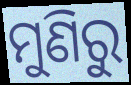
ମୁଣିରୁ